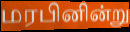
மரபினின்று